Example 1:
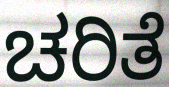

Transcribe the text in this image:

ಚರಿತೆ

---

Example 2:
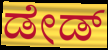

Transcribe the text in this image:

ಡೇಡ್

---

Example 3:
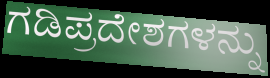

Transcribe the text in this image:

ಗಡಿಪ್ರದೇಶಗಳನ್ನು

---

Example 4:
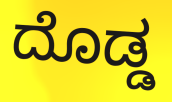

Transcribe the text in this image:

ದೊಡ್ಡ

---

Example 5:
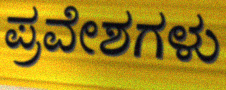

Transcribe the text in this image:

ಪ್ರವೇಶಗಳು